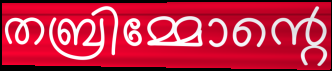
തബ്രിമ്മോന്റെ